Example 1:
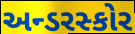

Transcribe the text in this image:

અન્ડરસ્કોર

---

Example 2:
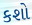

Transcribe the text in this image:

કશો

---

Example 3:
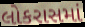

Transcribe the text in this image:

લોકરાસમાં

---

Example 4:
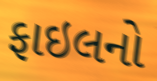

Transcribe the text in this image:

ફાઇલનો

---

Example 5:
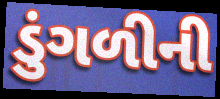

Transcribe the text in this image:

ડુંગળીની